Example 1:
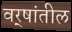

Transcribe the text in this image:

वर्षांतील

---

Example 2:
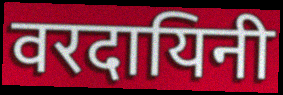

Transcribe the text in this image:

वरदायिनी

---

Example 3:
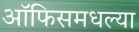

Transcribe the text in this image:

ऑफिसमधल्या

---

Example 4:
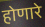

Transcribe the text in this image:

होणारे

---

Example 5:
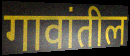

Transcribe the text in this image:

गावांतील